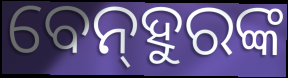
ବେନ୍‍ହୁରଙ୍କ